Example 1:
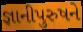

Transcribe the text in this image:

જ્ઞાનીપુરુષને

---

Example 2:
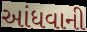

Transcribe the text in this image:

આંધવાની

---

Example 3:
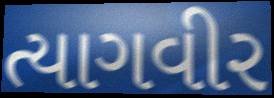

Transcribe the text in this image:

ત્યાગવીર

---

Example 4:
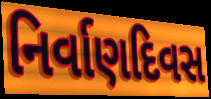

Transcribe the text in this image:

નિર્વાણદિવસ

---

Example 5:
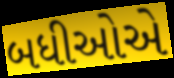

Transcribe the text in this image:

બધીઓએ